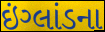
ઇંગ્લાંડના